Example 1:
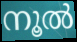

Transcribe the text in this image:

നൂൽ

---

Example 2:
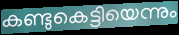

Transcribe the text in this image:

കണ്ടുകെട്ടിയെന്നും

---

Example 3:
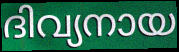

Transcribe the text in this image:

ദിവ്യനായ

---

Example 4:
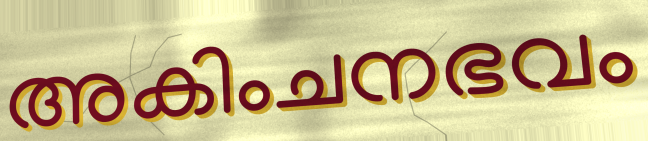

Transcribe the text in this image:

അകിംചനഭവം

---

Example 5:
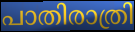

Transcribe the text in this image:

പാതിരാത്രി